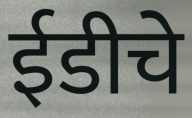
ईडीचे